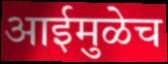
आईमुळेच